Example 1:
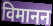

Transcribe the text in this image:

विमानन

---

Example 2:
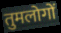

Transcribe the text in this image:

तुमलोगों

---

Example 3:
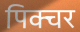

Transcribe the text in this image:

पिक्चर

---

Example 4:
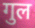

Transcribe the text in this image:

गुल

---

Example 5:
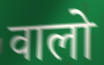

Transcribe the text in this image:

वालो